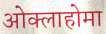
ओक्लाहोमा